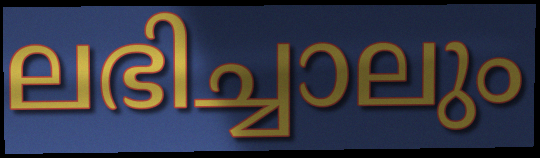
ലഭിച്ചാലും